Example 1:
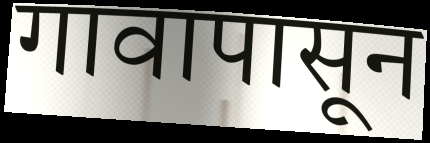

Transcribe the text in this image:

गावापासून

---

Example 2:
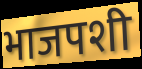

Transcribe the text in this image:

भाजपशी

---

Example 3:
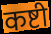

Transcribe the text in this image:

कष्टी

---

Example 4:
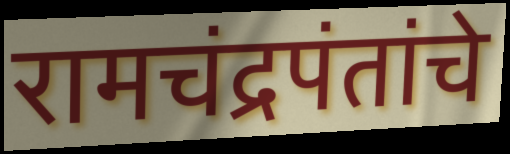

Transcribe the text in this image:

रामचंद्रपंतांचे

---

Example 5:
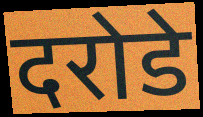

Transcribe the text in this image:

दरोडे